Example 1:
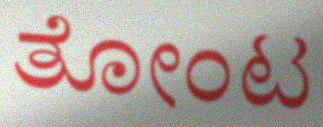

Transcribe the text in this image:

ತೋಂಟ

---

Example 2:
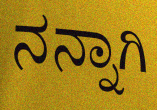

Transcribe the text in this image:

ನನ್ನಾಗಿ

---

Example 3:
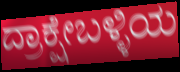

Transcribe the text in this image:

ದ್ರಾಕ್ಷೇಬಳ್ಳಿಯ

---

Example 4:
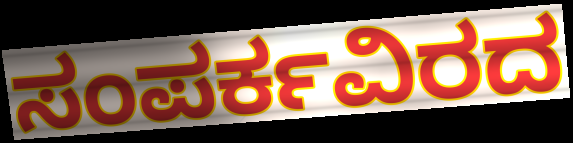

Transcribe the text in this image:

ಸಂಪರ್ಕವಿರದ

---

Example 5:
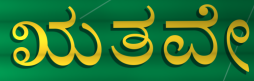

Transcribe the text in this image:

ಋತವೇ